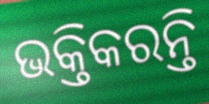
ଭକ୍ତିକରନ୍ତି